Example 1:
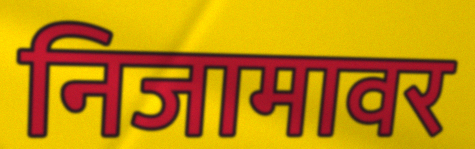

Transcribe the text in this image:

निजामावर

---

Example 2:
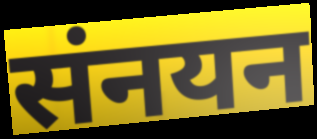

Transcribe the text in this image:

संनयन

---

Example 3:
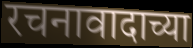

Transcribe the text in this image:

रचनावादाच्या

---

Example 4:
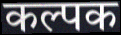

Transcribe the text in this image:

कल्पक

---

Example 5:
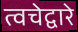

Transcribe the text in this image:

त्वचेद्वारे